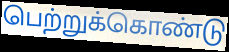
பெற்றுக்கொண்டு